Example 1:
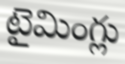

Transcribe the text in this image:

టైమింగ్లు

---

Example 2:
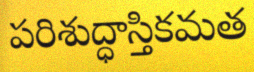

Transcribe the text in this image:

పరిశుద్ధాస్తికమత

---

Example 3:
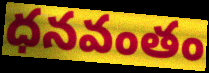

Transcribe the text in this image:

ధనవంతం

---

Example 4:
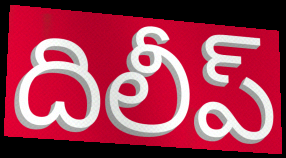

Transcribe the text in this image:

దిలీప్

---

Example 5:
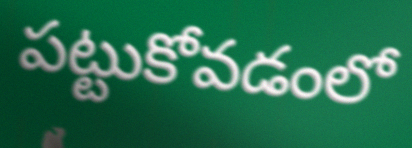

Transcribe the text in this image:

పట్టుకోవడంలో